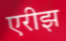
एरीझ